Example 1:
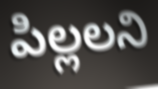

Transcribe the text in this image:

పిల్లలని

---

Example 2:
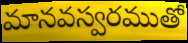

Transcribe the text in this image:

మానవస్వరముతో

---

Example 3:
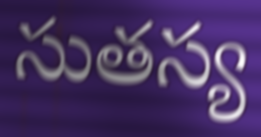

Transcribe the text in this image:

సుతస్య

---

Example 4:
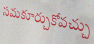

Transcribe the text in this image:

సమకూర్చుకోవచ్చు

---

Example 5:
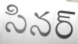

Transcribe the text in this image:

సినర్